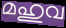
മഹുവ